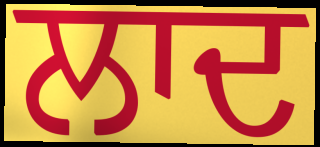
ਲਾਦ